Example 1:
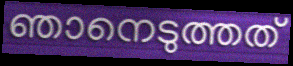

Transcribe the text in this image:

ഞാനെടുത്തത്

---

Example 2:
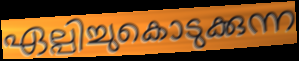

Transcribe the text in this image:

ഏല്പിച്ചുകൊടുക്കുന്ന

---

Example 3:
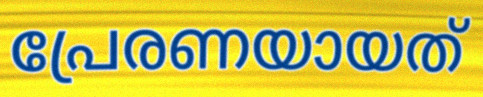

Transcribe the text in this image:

പ്രേരണയായത്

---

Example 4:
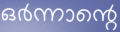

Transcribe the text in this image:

ഒർന്നാന്റെ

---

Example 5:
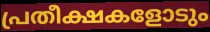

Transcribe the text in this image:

പ്രതീക്ഷകളോടും